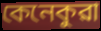
কেনেকুৱা